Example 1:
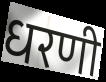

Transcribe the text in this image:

धरणी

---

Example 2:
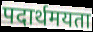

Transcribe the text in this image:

पदार्थमयता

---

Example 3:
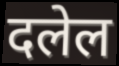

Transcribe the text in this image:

दलेल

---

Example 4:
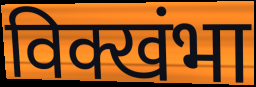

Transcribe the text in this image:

विक्खंभा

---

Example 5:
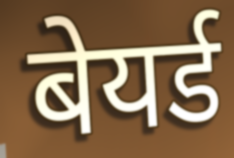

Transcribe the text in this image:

बेयर्ड